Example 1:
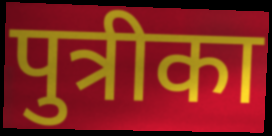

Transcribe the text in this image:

पुत्रीका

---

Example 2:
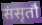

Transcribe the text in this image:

संसृतौ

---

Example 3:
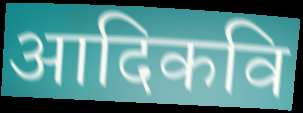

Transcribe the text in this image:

आदिकवि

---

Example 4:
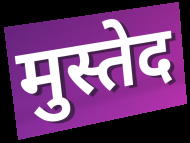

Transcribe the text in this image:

मुस्तेद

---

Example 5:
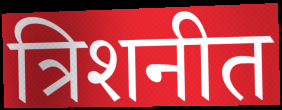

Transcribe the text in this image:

त्रिशनीत